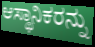
ಆಸ್ಥಾನಿಕರನ್ನು